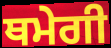
ਥਮੇਗੀ